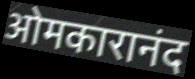
ओमकारानंद